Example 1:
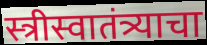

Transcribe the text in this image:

स्त्रीस्वातंत्र्याचा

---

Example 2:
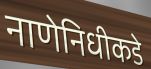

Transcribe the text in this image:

नाणेनिधीकडे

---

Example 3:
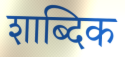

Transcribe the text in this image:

शाब्दिक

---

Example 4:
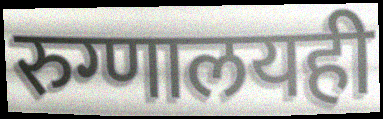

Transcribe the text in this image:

रुग्णालयही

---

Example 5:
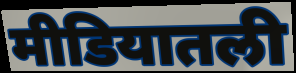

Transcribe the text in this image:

मीडियातली